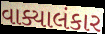
વાક્યાલંકાર